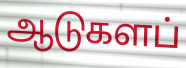
ஆடுகளப்